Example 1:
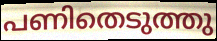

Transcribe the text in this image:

പണിതെടുത്തു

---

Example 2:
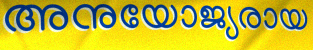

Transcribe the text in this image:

അനുയോജ്യരായ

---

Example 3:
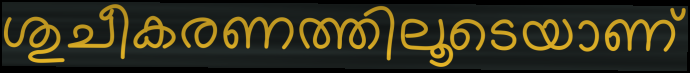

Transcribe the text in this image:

ശുചീകരണത്തിലൂടെയാണ്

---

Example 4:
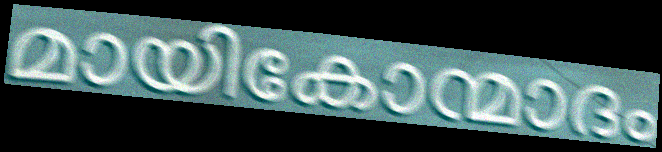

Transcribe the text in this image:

മായികോന്മാദം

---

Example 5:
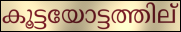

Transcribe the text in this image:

കൂട്ടയോട്ടത്തില്